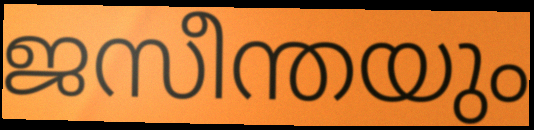
ജസീന്തയും